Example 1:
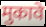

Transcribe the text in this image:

मुकावे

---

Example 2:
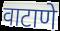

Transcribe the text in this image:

वाटाणे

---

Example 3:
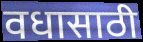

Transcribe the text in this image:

वधासाठी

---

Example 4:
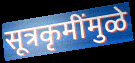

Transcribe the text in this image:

सूत्रकृमींमुळे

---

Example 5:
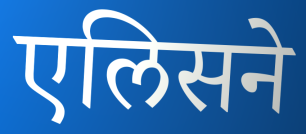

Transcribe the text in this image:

एलिसने